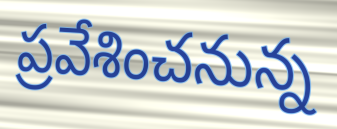
ప్రవేశించనున్న